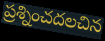
ప్రశ్నించదలచిన